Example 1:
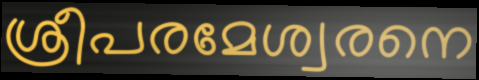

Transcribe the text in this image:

ശ്രീപരമേശ്വരനെ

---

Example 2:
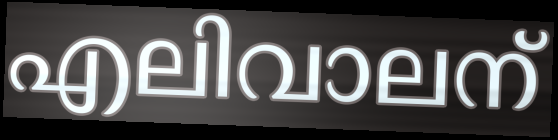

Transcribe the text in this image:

എലിവാലന്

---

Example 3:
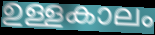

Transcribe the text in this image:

ഉള്ളകാലം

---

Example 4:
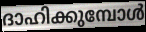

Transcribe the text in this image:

ദാഹിക്കുമ്പോൾ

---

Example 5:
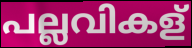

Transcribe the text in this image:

പല്ലവികള്